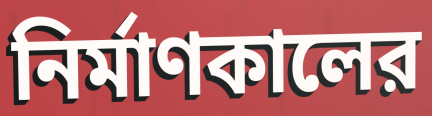
নির্মাণকালের